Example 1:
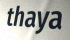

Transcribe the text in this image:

thaya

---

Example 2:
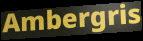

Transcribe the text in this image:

Ambergris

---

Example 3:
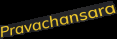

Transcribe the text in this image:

Pravachansara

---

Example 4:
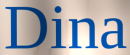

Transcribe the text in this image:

Dina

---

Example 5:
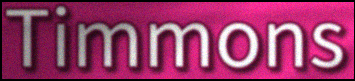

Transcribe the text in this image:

Timmons